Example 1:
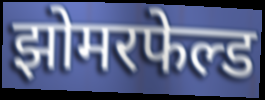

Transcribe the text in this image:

झोमरफेल्ड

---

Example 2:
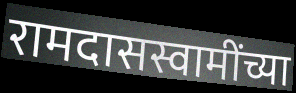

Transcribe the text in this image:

रामदासस्वामींच्या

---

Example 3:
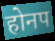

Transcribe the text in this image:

होनप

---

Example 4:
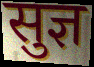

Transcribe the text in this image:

सुज्ञ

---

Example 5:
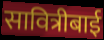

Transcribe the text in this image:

सावित्रीबाई